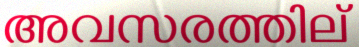
അവസരത്തില്